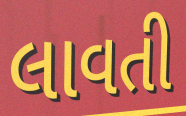
લાવતી